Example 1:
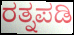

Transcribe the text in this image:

ರತ್ನಪಡಿ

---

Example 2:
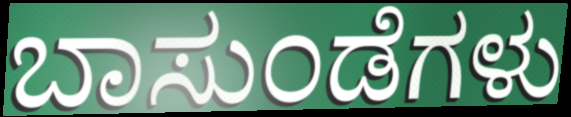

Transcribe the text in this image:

ಬಾಸುಂಡೆಗಳು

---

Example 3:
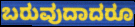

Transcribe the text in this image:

ಬರುವುದಾದರೂ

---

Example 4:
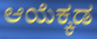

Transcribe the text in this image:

ಆಯೆಕ್ಕಡ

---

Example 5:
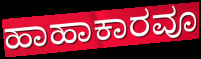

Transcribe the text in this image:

ಹಾಹಾಕಾರವೂ